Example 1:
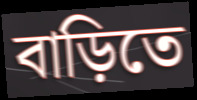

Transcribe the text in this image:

বাড়িতে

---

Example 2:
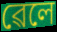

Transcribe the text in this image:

ৱেলে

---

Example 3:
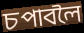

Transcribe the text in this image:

চপাবলৈ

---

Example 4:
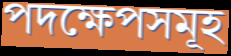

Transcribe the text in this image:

পদক্ষেপসমূহ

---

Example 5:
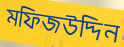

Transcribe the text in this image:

মফিজউদ্দিন